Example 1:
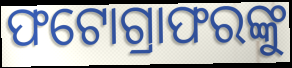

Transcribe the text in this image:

ଫଟୋଗ୍ରାଫରଙ୍କୁ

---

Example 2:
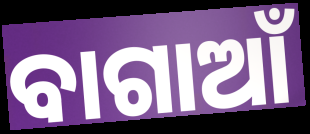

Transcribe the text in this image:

ବାଗାଆଁ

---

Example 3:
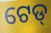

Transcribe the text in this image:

ଟେଡ୍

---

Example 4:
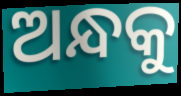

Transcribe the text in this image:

ଅନ୍ଧକୁ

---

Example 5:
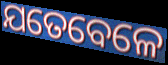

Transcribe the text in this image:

ଯତେବେଳେ